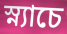
স্ন্যাচে